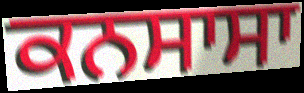
ਕਨਸਾਸਾ